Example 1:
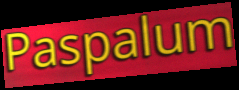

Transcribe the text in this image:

Paspalum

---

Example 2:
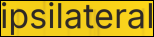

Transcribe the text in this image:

ipsilateral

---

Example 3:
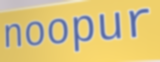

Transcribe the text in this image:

noopur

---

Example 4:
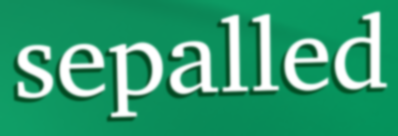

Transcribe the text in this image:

sepalled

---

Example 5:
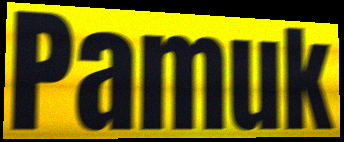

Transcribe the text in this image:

Pamuk